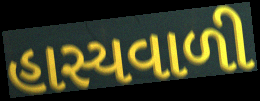
હાસ્યવાળી